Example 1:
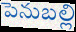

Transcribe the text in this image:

పెనుబల్లి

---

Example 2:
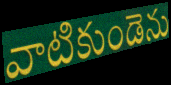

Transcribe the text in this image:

వాటికుండెను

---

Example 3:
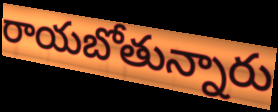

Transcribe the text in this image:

రాయబోతున్నారు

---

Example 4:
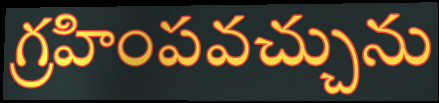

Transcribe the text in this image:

గ్రహింపవచ్చును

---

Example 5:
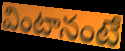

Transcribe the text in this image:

వింటానంటే